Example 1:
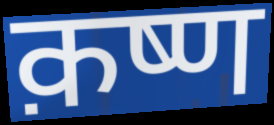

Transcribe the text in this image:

क़ष्ण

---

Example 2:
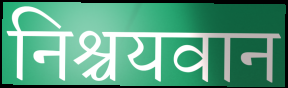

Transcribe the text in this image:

निश्चयवान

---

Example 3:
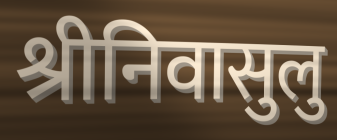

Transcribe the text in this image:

श्रीनिवासुलु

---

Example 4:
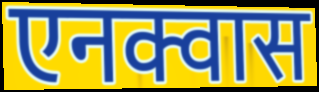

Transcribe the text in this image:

एनक्वास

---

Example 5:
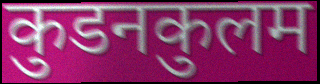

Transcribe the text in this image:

कुडनकुलम